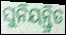
ସୁନିୟନ୍ତ୍ରିତ